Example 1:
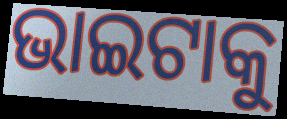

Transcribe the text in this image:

ଭାଇଟାକୁ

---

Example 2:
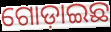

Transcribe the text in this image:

ଗୋଡ଼ାଇଛ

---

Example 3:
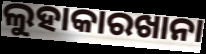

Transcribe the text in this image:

ଲୁହାକାରଖାନା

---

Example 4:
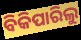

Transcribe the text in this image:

ବିକିପାରିଲୁ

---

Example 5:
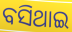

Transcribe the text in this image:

ବସିଥାଇ